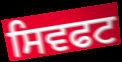
ਸਿਵਫਟ